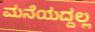
ಮನೆಯದ್ದಲ್ಲ